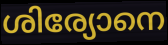
ശിര്യോനെ